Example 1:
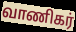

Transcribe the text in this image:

வாணிகர்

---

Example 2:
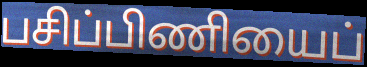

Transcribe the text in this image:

பசிப்பிணியைப்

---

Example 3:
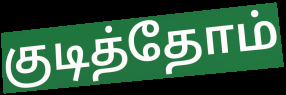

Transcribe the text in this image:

குடித்தோம்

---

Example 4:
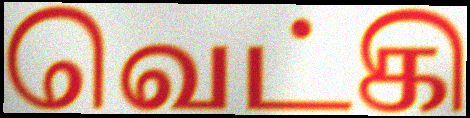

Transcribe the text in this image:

வெட்கி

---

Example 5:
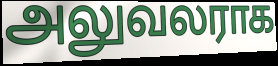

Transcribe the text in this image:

அலுவலராக